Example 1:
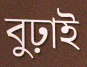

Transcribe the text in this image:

বুঢ়াই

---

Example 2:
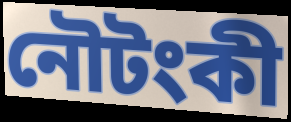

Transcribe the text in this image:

নৌটংকী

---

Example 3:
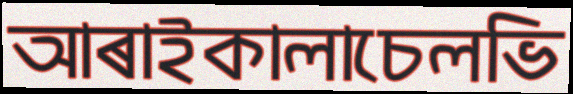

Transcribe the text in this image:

আৰাইকালাচেলভি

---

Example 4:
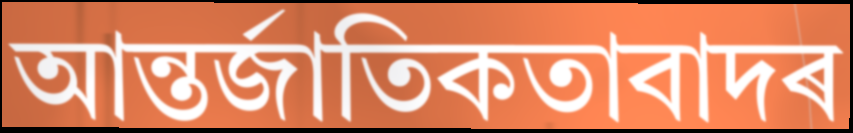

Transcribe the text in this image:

আন্তৰ্জাতিকতাবাদৰ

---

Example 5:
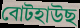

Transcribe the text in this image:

বোটহাউছ